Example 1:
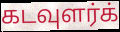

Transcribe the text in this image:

கடவுளர்க்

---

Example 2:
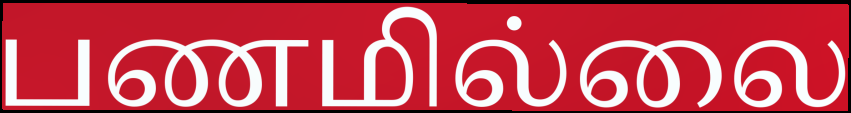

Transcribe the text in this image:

பணமில்லை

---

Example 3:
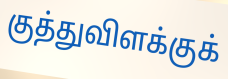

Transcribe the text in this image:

குத்துவிளக்குக்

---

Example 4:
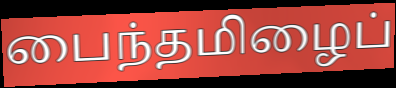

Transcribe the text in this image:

பைந்தமிழைப்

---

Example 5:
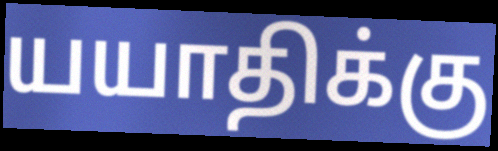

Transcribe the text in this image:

யயாதிக்கு